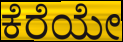
ಕೆರೆಯೇ